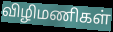
விழிமணிகள்